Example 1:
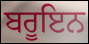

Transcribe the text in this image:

ਬਰੂਇਨ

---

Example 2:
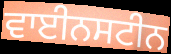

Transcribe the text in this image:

ਵਾਈਨਸਟੀਨ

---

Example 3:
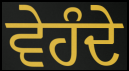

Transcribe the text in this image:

ਵੇਹੰਦੇ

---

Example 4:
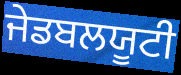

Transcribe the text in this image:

ਜੇਡਬਲਯੂਟੀ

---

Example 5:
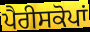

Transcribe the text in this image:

ਪੈਰੀਸਕੋਪਾਂ